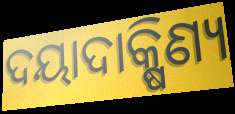
ଦୟାଦାକ୍ଷିଣ୍ୟ